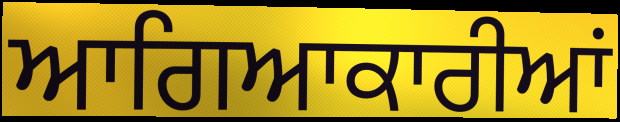
ਆਗਿਆਕਾਰੀਆਂ